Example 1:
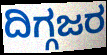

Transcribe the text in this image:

ದಿಗ್ಗಜರ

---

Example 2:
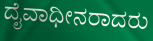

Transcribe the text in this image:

ದೈವಾಧೀನರಾದರು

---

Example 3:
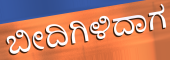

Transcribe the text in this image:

ಬೀದಿಗಿಳಿದಾಗ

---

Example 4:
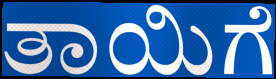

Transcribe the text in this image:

ತಾಯಿಗೆ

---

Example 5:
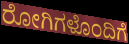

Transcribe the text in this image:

ರೋಗಿಗಳೊಂದಿಗೆ